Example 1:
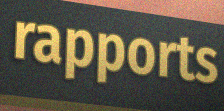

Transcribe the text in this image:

rapports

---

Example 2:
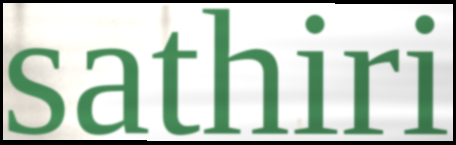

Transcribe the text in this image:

sathiri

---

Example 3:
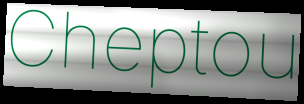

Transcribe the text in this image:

Cheptou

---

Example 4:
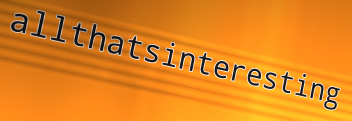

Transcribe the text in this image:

allthatsinteresting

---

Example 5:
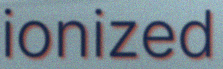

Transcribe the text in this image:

ionized